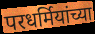
परधर्मियांच्या